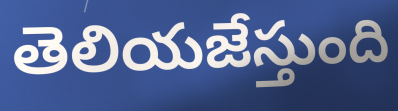
తెలియజేస్తుంది